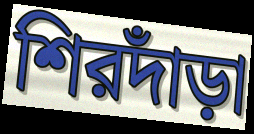
শিরদাঁড়া